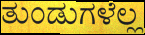
ತುಂಡುಗಳೆಲ್ಲ